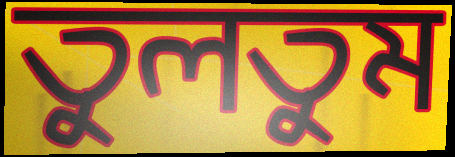
তুলতুম